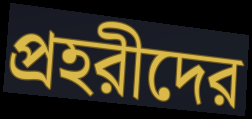
প্রহরীদের